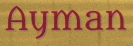
Ayman